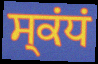
ਸ੍ਕਂਧਂ